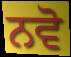
ਨਵੋ